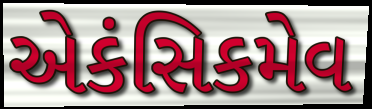
એકંસિકમેવ